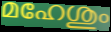
മഹേശും